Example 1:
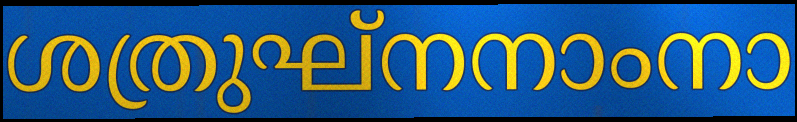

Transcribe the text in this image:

ശത്രുഘ്നനാംനാ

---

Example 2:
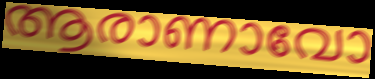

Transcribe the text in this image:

ആരാണാവോ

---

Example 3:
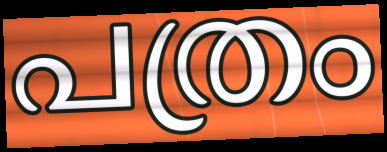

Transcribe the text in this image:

പത്രം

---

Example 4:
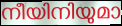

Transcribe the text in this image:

നീയിനിയുമാ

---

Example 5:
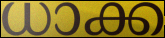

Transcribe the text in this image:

ധാക്ക